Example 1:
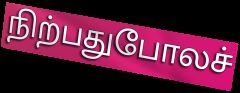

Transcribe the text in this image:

நிற்பதுபோலச்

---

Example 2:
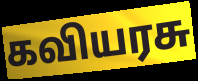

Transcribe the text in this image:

கவியரசு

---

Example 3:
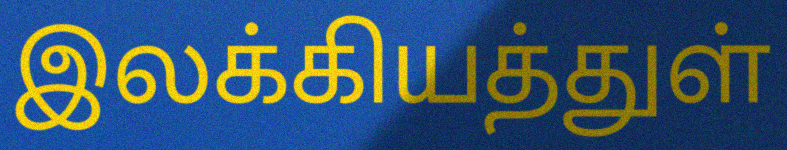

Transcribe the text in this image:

இலக்கியத்துள்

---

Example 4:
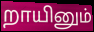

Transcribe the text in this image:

றாயினும்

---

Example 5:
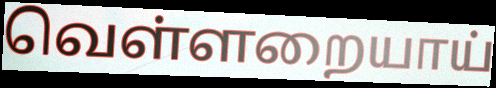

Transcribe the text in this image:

வெள்ளறையாய்